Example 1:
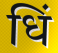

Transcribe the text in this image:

धिं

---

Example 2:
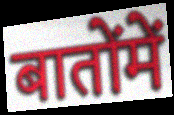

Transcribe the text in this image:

बातोंमें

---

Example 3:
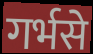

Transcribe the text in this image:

गर्भसे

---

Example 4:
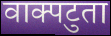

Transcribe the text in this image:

वाक्पटुता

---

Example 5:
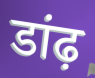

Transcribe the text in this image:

डांढ़